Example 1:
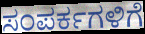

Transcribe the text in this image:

ಸಂಪರ್ಕಗಳಿಗೆ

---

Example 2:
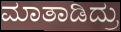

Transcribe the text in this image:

ಮಾತಾಡಿದ್ರು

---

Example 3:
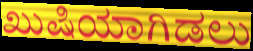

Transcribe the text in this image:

ಖುಷಿಯಾಗಿಡಲು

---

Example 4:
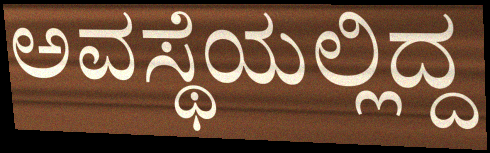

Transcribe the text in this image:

ಅವಸ್ಥೆಯಲ್ಲಿದ್ದ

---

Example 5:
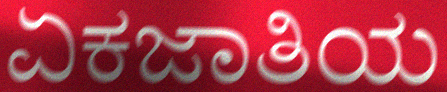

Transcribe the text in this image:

ಏಕಜಾತಿಯ